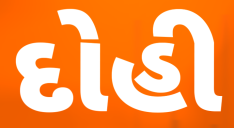
દોહી